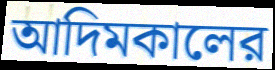
আদিমকালের